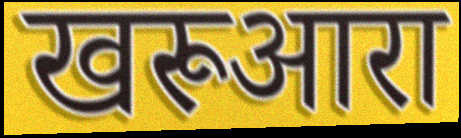
खरूआरा